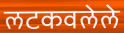
लटकवलेले